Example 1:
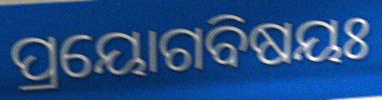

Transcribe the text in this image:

ପ୍ରୟୋଗବିଷୟଃ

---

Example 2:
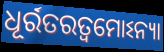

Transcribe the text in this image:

ଧୂର୍ରତରତ୍ୱମୋଽନ୍ୟା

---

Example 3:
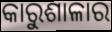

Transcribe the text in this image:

କାରୁଶାଳାର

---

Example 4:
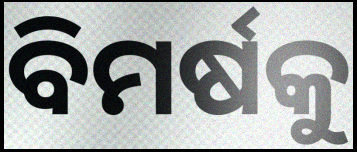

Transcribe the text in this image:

ବିମର୍ଷକୁ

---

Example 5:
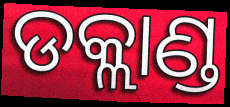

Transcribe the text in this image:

ଡକ୍ଲାଣ୍ଡ